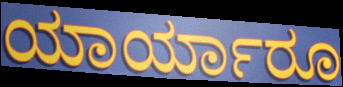
ಯಾರ್ಯಾರೂ